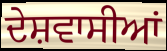
ਦੇਸ਼ਵਾਸੀਆਂ